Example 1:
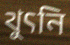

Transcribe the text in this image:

থুৎনি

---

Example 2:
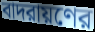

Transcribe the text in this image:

বাদরায়ণের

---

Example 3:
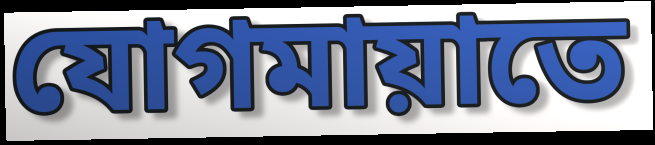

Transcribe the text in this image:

যোগমায়াতে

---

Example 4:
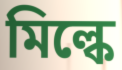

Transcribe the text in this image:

মিল্কে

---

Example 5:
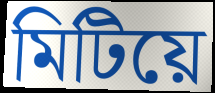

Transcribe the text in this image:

মিটিয়ে